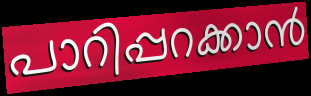
പാറിപ്പറക്കാൻ